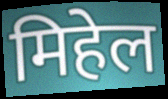
मिहेल